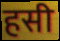
हसी